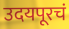
उदयपूरचं